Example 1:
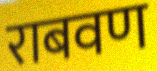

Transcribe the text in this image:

राबवण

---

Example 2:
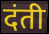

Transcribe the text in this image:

दंती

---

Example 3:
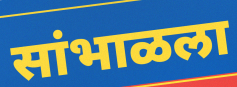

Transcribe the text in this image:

सांभाळला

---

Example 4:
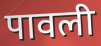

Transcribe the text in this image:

पावली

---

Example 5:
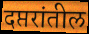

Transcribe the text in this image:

दप्तरांतील